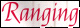
Ranging